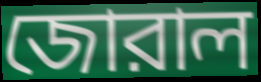
জোরাল